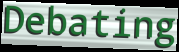
Debating